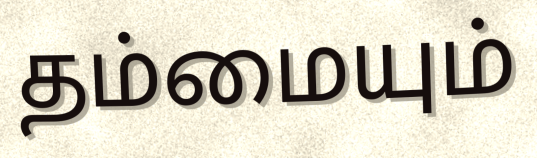
தம்மையும்